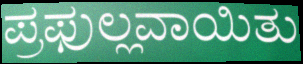
ಪ್ರಫುಲ್ಲವಾಯಿತು